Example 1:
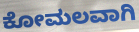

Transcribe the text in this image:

ಕೋಮಲವಾಗಿ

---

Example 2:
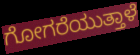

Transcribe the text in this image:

ಗೋಗರೆಯುತ್ತಾಳೆ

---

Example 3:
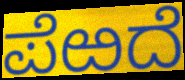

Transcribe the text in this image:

ಪೆಱದೆ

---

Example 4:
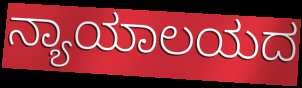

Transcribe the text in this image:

ನ್ಯಾಯಾಲಯದ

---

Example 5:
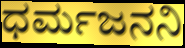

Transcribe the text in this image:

ಧರ್ಮಜನನಿ